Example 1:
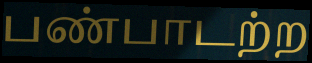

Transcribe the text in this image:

பண்பாடற்ற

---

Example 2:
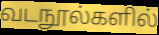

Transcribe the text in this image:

வடநூல்களில்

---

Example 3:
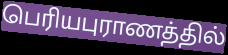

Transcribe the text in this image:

பெரியபுராணத்தில்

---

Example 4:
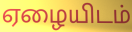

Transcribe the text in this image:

ஏழையிடம்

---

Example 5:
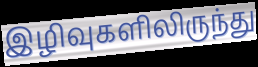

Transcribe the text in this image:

இழிவுகளிலிருந்து